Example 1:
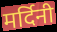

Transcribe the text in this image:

मर्दिनी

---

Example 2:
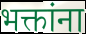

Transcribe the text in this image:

भक्तांना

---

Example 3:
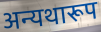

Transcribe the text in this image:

अन्यथारूप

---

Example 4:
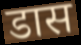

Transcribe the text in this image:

डास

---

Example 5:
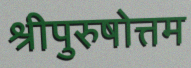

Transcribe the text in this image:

श्रीपुरुषोत्तम